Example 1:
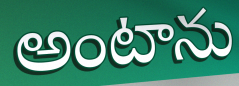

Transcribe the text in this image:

అంటాను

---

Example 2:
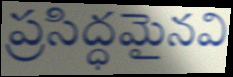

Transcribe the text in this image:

ప్రసిద్ధమైనవి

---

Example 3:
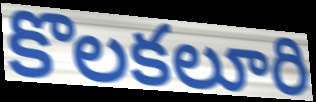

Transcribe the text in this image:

కొలకలూరి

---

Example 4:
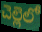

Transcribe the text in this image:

చెల్లెలో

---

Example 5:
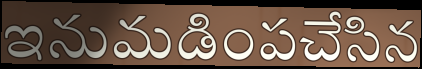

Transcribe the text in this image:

ఇనుమడింపచేసిన